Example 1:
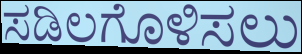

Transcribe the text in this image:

ಸಡಿಲಗೊಳಿಸಲು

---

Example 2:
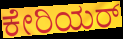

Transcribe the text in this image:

ಕೇರಿಯರ್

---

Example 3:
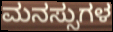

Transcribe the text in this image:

ಮನಸ್ಸುಗಳ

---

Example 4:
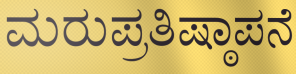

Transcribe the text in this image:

ಮರುಪ್ರತಿಷ್ಠಾಪನೆ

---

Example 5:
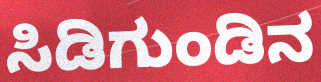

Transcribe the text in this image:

ಸಿಡಿಗುಂಡಿನ